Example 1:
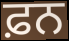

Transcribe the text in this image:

ਫ਼ਨ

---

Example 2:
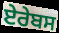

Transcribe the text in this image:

ਏਰੇਬਸ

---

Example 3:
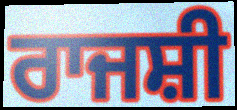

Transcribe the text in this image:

ਰਾਜਸ਼ੀ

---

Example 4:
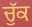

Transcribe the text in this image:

ਚੁੱਕ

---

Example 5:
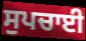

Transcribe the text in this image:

ਸੁਪਚਾਈ